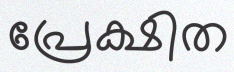
പ്രേക്ഷിത